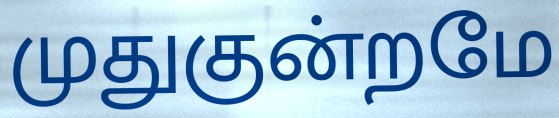
முதுகுன்றமே